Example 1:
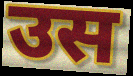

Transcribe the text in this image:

उस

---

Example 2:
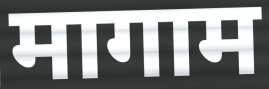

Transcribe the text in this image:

मागाम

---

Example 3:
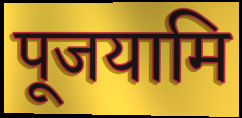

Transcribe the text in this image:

पूजयामि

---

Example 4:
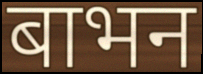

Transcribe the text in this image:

बाभन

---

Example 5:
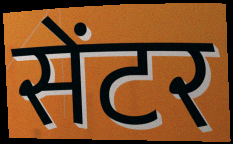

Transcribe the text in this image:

सेंटर